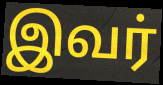
இவர்